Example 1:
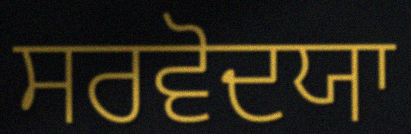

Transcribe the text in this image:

ਸਰਵੋਦਯਾ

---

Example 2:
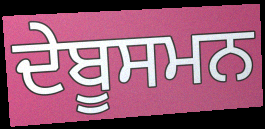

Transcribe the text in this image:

ਦੇਬੂਸਮਨ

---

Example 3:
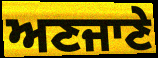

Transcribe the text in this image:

ਅਣਜਾਣੇ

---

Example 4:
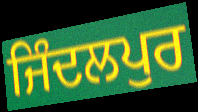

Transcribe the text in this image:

ਜਿੰਦਲਪੁਰ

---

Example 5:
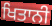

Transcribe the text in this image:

ਖਿਤਾਨੀ